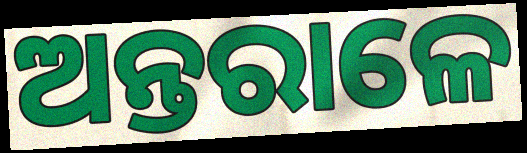
ଅନ୍ତରାଳେ